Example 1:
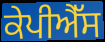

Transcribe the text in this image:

ਕੇਪੀਐੱਸ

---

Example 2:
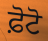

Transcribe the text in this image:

ਫ਼ੋਟੋ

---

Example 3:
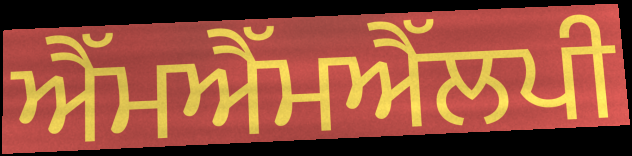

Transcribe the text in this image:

ਐੱਮਐੱਮਐੱਲਪੀ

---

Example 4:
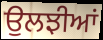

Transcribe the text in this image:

ਉਲਝੀਆਂ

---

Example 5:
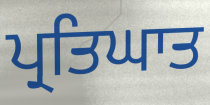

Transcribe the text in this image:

ਪ੍ਰਤਿਘਾਤ